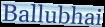
Ballubhai